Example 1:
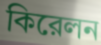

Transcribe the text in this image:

কিরেলন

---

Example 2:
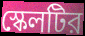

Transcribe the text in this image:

স্কেলটির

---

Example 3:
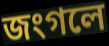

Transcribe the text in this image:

জংগলে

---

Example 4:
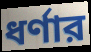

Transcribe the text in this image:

ধর্ণার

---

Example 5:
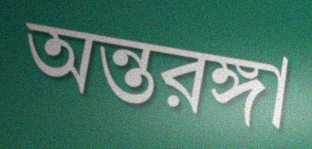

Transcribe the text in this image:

অন্তরঙ্গা